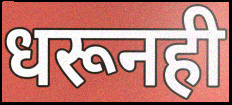
धरूनही